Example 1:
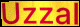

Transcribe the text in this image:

Uzzal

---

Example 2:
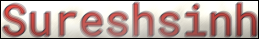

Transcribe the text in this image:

Sureshsinh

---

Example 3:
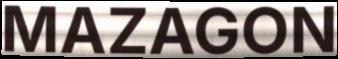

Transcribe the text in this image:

MAZAGON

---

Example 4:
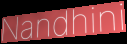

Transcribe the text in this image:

Nandhini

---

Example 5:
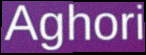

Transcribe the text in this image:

Aghori